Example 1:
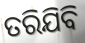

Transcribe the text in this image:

ତରିଯିବି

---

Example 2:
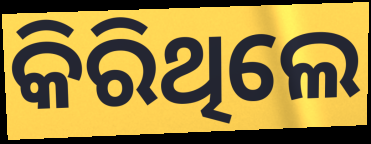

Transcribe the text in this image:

କିରିଥିଲେ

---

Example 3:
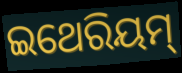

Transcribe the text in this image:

ଇଥେରିୟମ୍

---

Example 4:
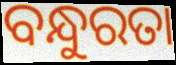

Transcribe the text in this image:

ବନ୍ଧୁରତା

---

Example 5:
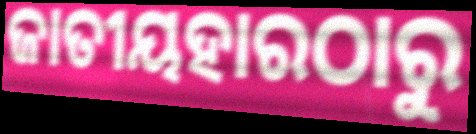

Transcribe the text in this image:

ଜାତୀୟହାରଠାରୁ